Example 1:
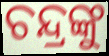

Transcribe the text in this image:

ଚନ୍ଦ୍ରଙ୍କୁ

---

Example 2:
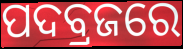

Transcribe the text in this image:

ପଦବ୍ରଜରେ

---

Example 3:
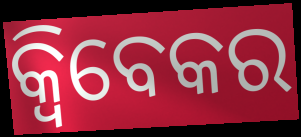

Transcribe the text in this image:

କ୍ୱିବେକର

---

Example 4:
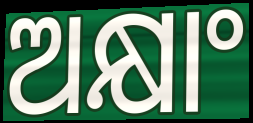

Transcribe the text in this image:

ଅକ୍ଷାଂ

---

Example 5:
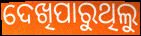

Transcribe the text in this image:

ଦେଖିପାରୁଥିଲୁ